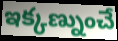
ఇక్కణ్నుంచే